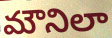
మౌనిలా